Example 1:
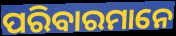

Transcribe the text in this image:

ପରିବାରମାନେ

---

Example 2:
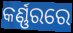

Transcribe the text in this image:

କର୍ଣ୍ଣରରେ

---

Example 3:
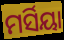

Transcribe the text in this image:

ମର୍ସିୟା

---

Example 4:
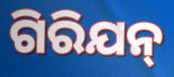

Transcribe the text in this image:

ଗିରିଯନ୍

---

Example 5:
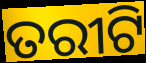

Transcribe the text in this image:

ତରୀଟି